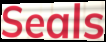
Seals